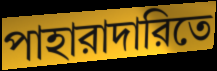
পাহারাদারিতে